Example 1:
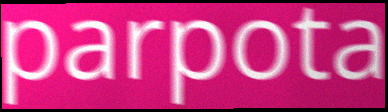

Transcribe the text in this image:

parpota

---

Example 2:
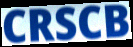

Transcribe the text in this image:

CRSCB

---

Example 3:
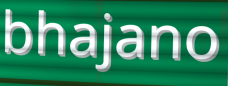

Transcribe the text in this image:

bhajano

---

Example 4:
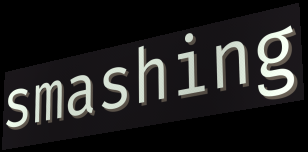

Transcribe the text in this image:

smashing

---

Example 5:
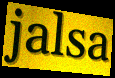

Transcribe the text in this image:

jalsa